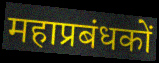
महाप्रबंधकों